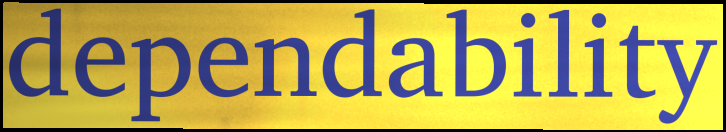
dependability